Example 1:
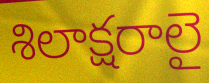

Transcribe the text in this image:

శిలాక్షరాలై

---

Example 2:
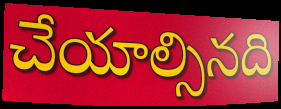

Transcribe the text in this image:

చేయాల్సినది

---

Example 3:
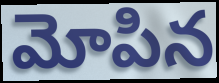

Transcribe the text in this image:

మోపిన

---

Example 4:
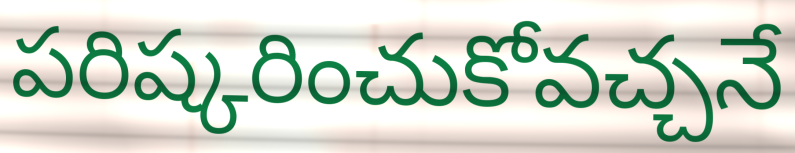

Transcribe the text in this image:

పరిష్కరించుకోవచ్చనే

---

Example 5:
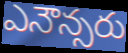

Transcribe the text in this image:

ఎనౌన్సరు